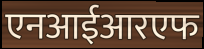
एनआईआरएफ